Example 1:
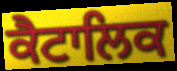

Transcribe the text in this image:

ਕੈਟਾਲਿਕ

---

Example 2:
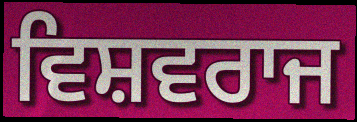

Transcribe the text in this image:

ਵਿਸ਼ਵਰਾਜ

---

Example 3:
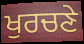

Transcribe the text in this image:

ਖੁਰਚਣੇ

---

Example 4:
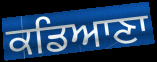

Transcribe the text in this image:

ਕਡਿਆਣਾ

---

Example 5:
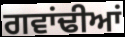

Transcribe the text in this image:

ਗਵਾਂਢੀਆਂ